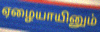
ஏழையாயினும்